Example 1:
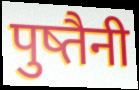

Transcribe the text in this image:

पुष्तैनी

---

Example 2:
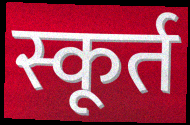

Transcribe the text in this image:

स्कूर्त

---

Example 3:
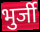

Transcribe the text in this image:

भुर्जी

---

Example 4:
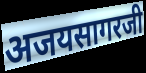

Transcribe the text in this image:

अजयसागरजी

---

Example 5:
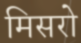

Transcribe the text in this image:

मिसरो